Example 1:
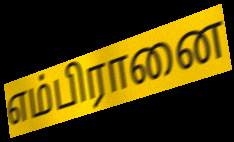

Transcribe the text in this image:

எம்பிரானை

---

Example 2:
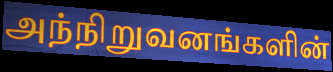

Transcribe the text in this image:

அந்நிறுவனங்களின்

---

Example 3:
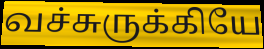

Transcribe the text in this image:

வச்சுருக்கியே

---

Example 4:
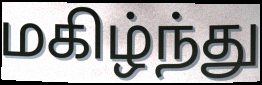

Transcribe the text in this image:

மகிழ்ந்து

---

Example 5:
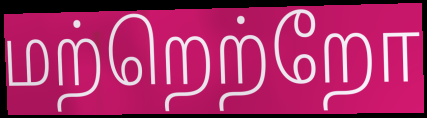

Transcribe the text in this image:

மற்றெற்றோ